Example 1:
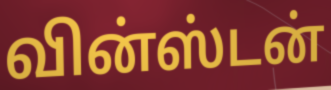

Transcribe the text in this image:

வின்ஸ்டன்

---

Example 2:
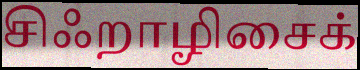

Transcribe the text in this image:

சிஃறாழிசைக்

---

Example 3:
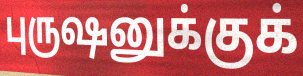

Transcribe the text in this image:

புருஷனுக்குக்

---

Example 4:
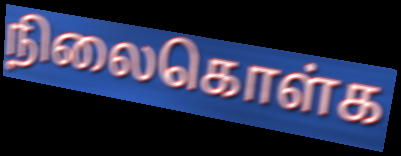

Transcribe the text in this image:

நிலைகொள்க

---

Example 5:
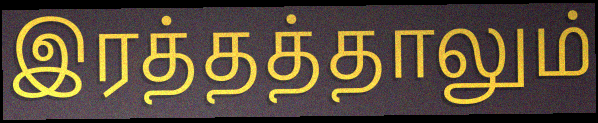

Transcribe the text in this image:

இரத்தத்தாலும்